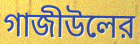
গাজীউলের